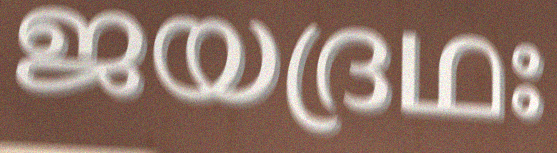
ജയദ്രഥഃ